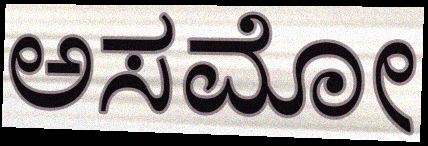
ಅಸಮೋ